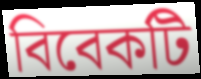
বিবেকটি